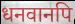
धनवानपि